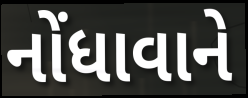
નોંધાવાને